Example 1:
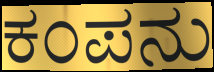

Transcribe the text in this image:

ಕಂಪನು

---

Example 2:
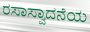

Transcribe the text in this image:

ರಸಾಸ್ವಾದನೆಯ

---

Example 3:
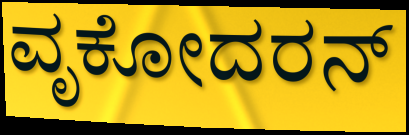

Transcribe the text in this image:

ವೃಕೋದರನ್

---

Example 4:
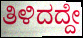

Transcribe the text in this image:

ತಿಳಿದದ್ದೇ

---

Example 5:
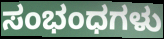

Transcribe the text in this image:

ಸಂಭಂಧಗಳು